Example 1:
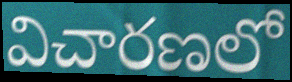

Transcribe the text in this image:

విచారణలో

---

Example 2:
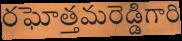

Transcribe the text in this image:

రఘోత్తమరెడ్డిగారి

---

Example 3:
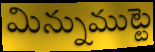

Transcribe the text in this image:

మిన్నుముట్టె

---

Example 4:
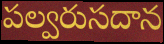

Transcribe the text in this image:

పల్వరుసదాన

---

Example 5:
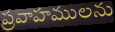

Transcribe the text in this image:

ప్రవాహములను